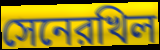
সেনেরখিল